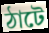
ঠাটে